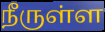
நீருள்ள